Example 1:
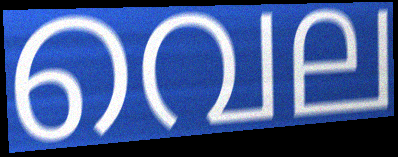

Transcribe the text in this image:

വെല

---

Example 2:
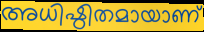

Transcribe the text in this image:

അധിഷ്ഠിതമായാണ്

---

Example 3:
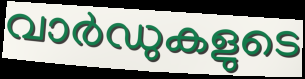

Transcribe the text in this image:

വാർഡുകളുടെ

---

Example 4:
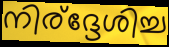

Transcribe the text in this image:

നിര്ദ്ദേശിച്ച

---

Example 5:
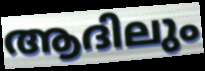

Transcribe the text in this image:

ആദിലും